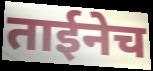
ताईनेच